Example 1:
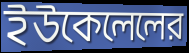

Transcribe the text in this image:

ইউকেলেলের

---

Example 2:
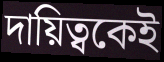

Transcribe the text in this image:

দায়িত্বকেই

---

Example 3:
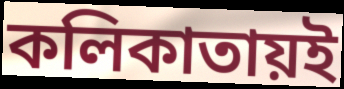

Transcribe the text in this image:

কলিকাতায়ই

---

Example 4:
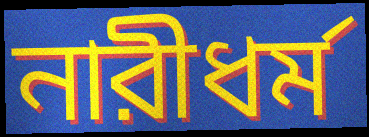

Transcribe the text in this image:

নারীধর্ম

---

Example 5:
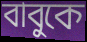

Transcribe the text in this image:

বাবুকে